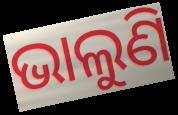
ଭାଲୁଣି